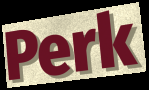
Perk